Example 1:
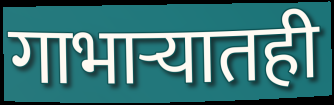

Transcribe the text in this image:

गाभाऱ्यातही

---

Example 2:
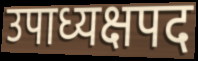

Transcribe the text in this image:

उपाध्यक्षपद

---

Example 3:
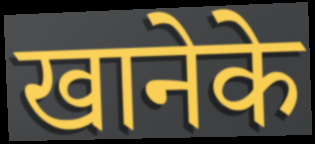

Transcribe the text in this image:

खानेके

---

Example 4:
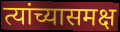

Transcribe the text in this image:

त्यांच्यासमक्ष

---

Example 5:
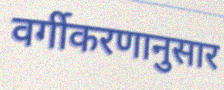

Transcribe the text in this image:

वर्गीकरणानुसार